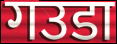
गउडा